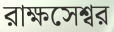
রাক্ষসেশ্বর